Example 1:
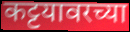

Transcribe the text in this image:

कट्टयावरच्या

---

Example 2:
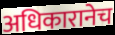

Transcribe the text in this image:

अधिकारानेच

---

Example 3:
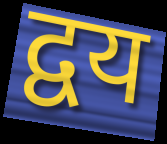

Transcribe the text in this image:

द्वय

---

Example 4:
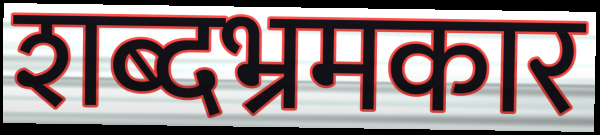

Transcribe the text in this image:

शब्दभ्रमकार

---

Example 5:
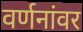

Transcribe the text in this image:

वर्णनांवर